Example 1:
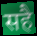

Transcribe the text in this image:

सहै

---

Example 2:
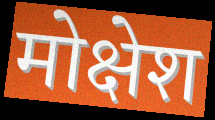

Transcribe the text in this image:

मोक्षेश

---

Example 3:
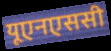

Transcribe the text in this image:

यूएनएससी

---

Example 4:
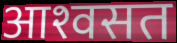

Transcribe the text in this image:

आश्वसत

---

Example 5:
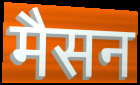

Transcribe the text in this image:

मैसन